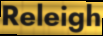
Releigh